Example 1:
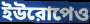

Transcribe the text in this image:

ইউরোপেও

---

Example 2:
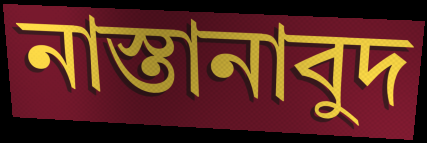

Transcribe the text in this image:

নাস্তানাবুদ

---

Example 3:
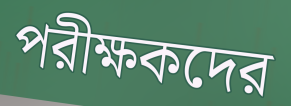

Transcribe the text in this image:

পরীক্ষকদের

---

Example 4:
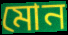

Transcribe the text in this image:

মোন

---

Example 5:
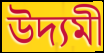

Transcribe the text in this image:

উদ্যমী